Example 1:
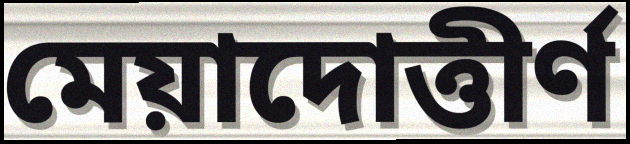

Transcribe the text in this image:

মেয়াদোত্তীর্ণ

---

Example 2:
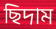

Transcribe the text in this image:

ছিদাম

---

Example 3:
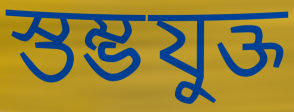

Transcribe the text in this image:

স্তম্ভযুক্ত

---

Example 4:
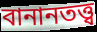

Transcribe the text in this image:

বানানতত্ত্ব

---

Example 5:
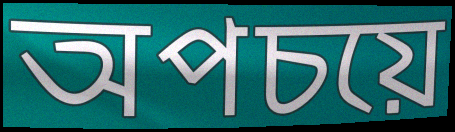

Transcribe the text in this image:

অপচয়ে